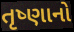
તૃષ્ણાનો